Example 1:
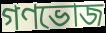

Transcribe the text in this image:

গণভোজ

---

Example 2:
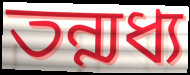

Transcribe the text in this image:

তন্মধ্য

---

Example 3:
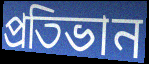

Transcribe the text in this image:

প্রতিভান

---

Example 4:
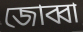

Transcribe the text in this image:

জোব্বা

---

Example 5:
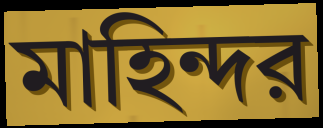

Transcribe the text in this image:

মাহিন্দর